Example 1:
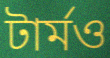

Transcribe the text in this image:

টার্মও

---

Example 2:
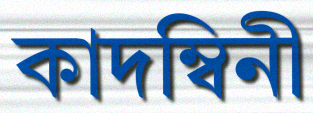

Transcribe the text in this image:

কাদম্বিনী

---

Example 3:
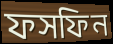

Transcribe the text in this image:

ফসফিন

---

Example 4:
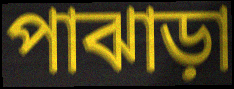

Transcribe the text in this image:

পাঝাড়া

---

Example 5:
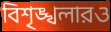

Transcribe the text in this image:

বিশৃঙ্খলারও